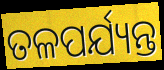
ତଳପର୍ଯ୍ୟନ୍ତ